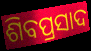
ଶିବପ୍ରସାଦ